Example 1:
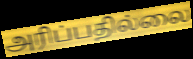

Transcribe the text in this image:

அரிப்பதில்லை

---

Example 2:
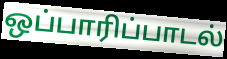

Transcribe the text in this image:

ஒப்பாரிப்பாடல்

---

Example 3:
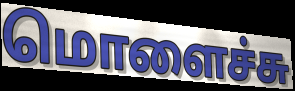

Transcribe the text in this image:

மொளைச்சு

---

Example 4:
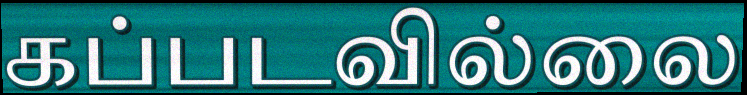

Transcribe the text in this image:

கப்படவில்லை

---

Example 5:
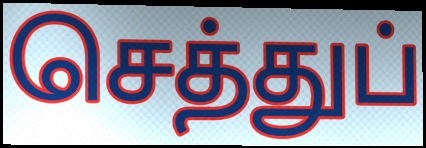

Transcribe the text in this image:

செத்துப்